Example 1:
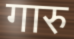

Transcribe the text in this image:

गारु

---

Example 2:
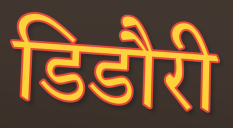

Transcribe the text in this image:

डिडौरी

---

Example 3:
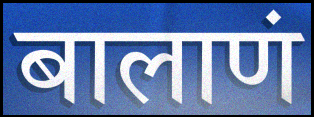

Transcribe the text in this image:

बालाणं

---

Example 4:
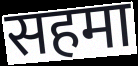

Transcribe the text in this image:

सहमा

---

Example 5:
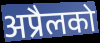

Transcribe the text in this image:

अप्रैलको